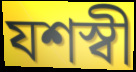
যশস্বী